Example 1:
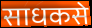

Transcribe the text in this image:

साधकसे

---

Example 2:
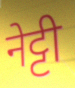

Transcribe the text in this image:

नेट्टी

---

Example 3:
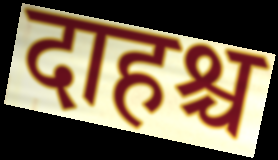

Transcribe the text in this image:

दाहश्च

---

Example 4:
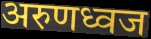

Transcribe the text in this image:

अरुणध्वज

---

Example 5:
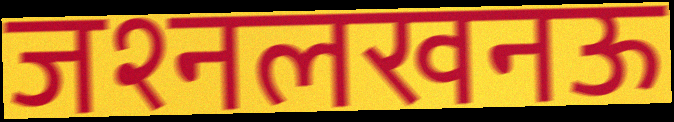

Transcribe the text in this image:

जश्नलखनऊ